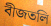
বীজতলি